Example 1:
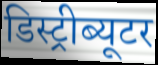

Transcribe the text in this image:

डिस्ट्रीब्यूटर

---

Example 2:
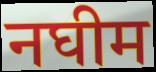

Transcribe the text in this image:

नघीम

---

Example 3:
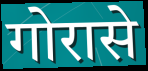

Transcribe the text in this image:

गोरासे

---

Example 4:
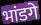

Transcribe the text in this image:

भांडगे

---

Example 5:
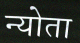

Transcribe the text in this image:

न्योता